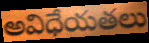
అవిధేయతలు